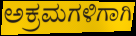
ಅಕ್ರಮಗಳಿಗಾಗಿ